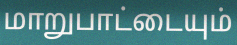
மாறுபாட்டையும்